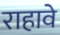
राहावे